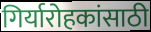
गिर्यारोहकांसाठी